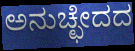
ಅನುಚ್ಛೇದದ